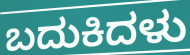
ಬದುಕಿದಳು